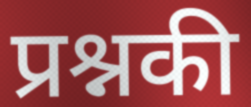
प्रश्नकी